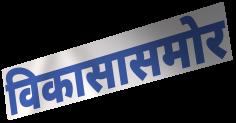
विकासासमोर